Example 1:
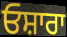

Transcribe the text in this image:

ਓਸ਼ਾਰਾ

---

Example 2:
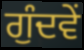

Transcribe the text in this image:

ਗੁੰਦਵੇਂ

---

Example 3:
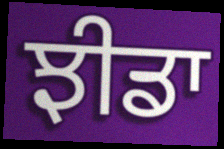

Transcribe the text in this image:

ਝੀਡਾ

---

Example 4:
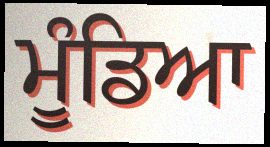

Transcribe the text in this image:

ਮੂੰਡਿਆ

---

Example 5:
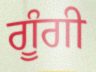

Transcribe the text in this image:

ਗੂੰਗੀ